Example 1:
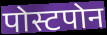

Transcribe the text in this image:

पोस्टपोन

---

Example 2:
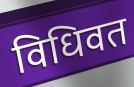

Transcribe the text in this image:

विधिवत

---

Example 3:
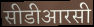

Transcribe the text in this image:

सीडीआरसी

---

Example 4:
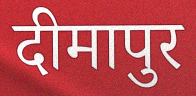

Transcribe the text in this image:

दीमापुर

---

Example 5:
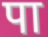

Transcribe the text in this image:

पा